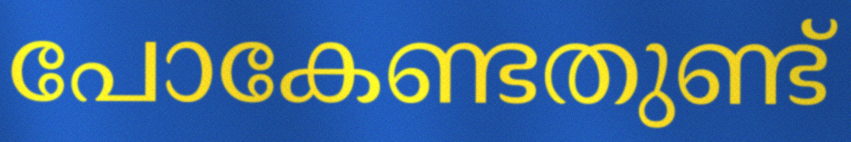
പോകേണ്ടതുണ്ട്